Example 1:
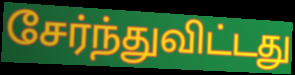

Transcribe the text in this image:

சேர்ந்துவிட்டது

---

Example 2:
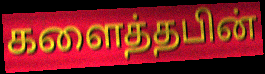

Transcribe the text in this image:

களைத்தபின்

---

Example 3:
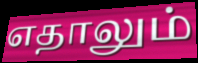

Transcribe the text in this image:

எதாலும்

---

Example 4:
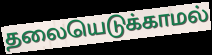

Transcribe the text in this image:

தலையெடுக்காமல்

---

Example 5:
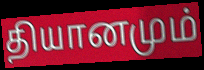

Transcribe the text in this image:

தியானமும்